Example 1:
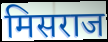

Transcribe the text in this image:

मिसराज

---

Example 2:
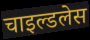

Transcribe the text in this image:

चाइल्डलेस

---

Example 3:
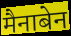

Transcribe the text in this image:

मैनाबेन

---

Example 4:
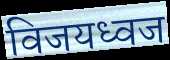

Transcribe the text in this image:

विजयध्वज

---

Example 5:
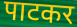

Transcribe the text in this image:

पाटकर